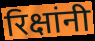
रिक्षांनी